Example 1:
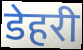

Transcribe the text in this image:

डेहरी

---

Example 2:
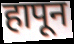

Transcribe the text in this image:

हापून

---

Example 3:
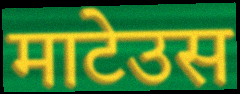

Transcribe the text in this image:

माटेउस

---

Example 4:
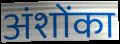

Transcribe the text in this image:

अंशोंका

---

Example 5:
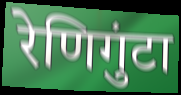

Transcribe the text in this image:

रेणिगुंटा